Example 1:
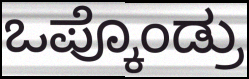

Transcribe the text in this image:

ಒಪ್ಕೊಂಡ್ರು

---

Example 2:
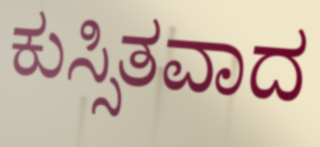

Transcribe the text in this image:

ಕುಸ್ಸಿತವಾದ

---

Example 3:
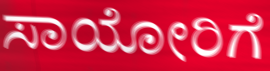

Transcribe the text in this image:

ಸಾಯೋರಿಗೆ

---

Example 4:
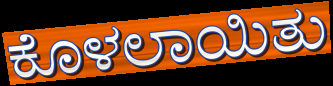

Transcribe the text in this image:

ಕೊಳಲಾಯಿತು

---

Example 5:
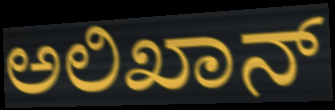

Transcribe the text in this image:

ಅಲಿಖಾನ್